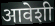
आवेशी